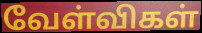
வேள்விகள்